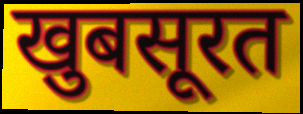
खुबसूरत